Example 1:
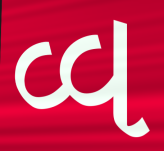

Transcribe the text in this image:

વ્વ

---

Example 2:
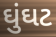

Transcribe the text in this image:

ઘુંઘટ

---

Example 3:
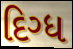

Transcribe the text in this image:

દિગ્ધ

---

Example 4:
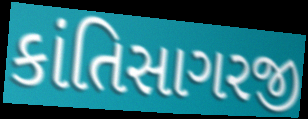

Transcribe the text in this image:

કાંતિસાગરજી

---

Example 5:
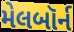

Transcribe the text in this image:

મેલબૉર્ન